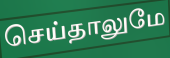
செய்தாலுமே